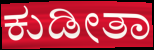
ಕುಡೀತಾ